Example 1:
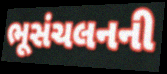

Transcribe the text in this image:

ભૂસંચલનની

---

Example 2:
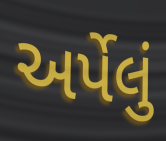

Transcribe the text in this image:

અર્પેલું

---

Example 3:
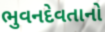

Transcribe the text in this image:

ભુવનદેવતાનો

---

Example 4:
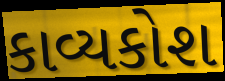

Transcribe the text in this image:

કાવ્યકોશ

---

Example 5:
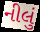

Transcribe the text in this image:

નીલું